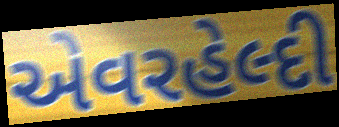
એવરહેલ્દી